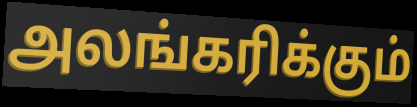
அலங்கரிக்கும்